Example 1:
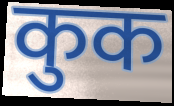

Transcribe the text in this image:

कुक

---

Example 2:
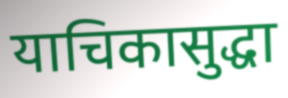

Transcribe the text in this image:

याचिकासुद्धा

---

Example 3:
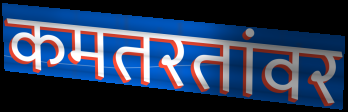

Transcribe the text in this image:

कमतरतांवर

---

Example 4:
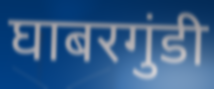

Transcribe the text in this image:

घाबरगुंडी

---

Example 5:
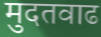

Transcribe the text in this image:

मुदतवाढ